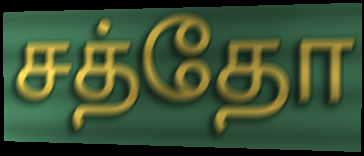
சத்தோ